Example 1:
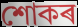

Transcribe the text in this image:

শোকৰ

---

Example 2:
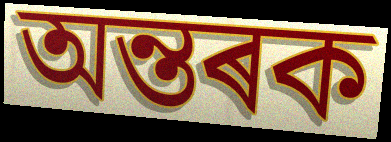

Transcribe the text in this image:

অন্তৰক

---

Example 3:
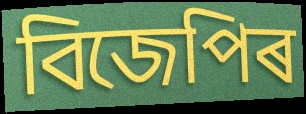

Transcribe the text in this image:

বিজেপিৰ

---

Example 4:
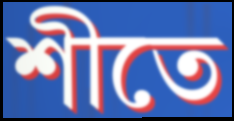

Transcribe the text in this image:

শীতে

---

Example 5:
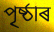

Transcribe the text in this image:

পৃষ্ঠাৰ